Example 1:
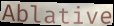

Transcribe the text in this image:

Ablative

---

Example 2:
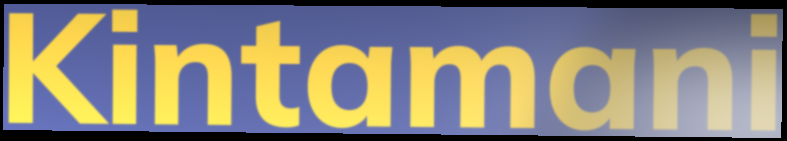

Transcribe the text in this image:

Kintamani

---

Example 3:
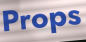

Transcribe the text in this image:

Props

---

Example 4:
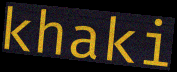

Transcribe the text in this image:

khaki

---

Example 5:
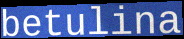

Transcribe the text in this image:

betulina